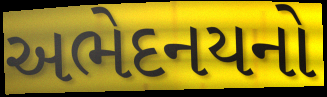
અભેદનયનો